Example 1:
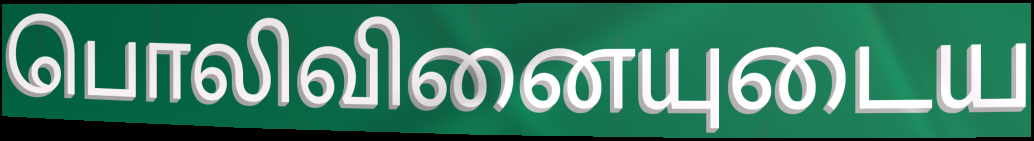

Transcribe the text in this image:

பொலிவினையுடைய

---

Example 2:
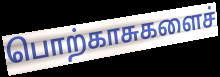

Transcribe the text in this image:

பொற்காசுகளைச்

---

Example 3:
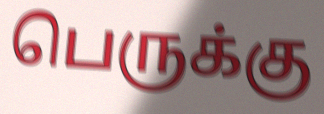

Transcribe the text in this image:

பெருக்கு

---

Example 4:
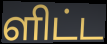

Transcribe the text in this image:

ளிட்ட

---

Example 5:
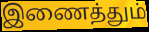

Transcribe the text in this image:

இணைத்தும்